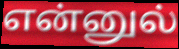
என்னுல்